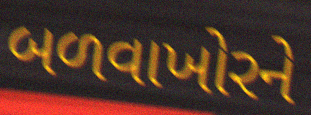
બળવાખોરને